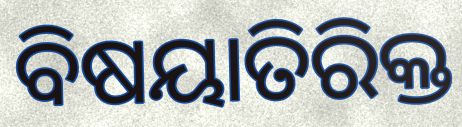
ବିଷୟାତିରିକ୍ତ